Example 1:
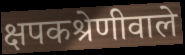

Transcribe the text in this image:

क्षपकश्रेणीवाले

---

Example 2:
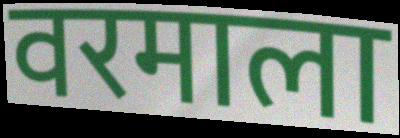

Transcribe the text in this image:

वरमाला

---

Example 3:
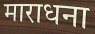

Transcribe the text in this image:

माराधना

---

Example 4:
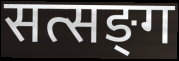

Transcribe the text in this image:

सत्सङ्ग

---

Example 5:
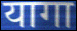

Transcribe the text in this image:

यागा